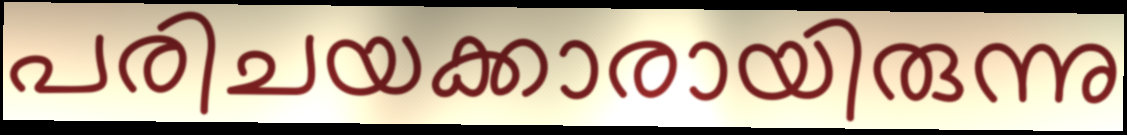
പരിചയക്കാരായിരുന്നു